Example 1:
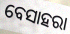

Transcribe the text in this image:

ବେସାହରା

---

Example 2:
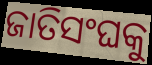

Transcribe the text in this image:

ଜାତିସଂଘକୁ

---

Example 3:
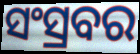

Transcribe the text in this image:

ସଂସ୍ରବର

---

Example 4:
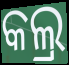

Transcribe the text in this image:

କଲ୍ର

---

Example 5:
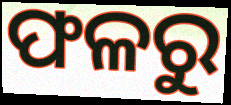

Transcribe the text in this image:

ଫଳରୁ